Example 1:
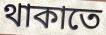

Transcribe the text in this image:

থাকাতে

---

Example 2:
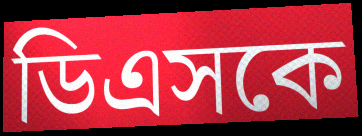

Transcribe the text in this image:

ডিএসকে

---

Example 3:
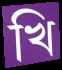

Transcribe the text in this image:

খি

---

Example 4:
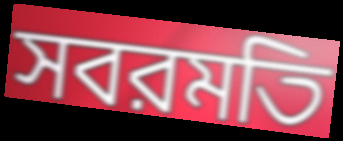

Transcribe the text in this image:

সবরমতি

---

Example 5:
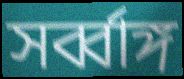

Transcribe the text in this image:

সর্ব্বাঙ্গ